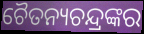
ଚୈତନ୍ୟଚନ୍ଦ୍ରଙ୍କର